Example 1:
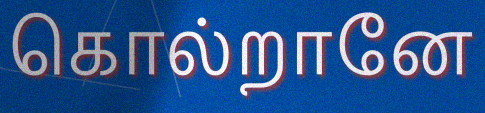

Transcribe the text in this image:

கொல்றானே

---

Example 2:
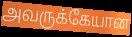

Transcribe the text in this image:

அவருக்கேயான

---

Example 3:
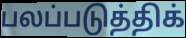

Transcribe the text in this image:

பலப்படுத்திக்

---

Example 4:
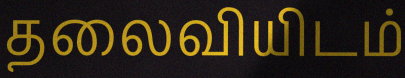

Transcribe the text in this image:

தலைவியிடம்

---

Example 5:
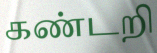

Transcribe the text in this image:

கண்டறி